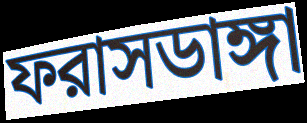
ফরাসডাঙ্গা